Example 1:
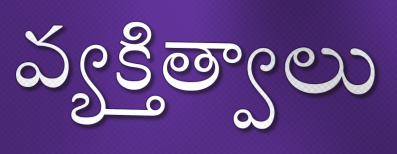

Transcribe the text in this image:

వ్యక్తిత్వాలు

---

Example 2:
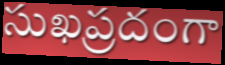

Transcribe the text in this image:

సుఖప్రదంగా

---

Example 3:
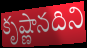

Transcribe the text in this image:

కృష్ణానదిని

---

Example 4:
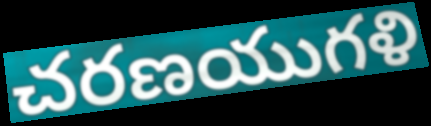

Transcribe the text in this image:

చరణయుగళి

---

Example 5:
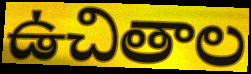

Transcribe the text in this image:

ఉచితాల